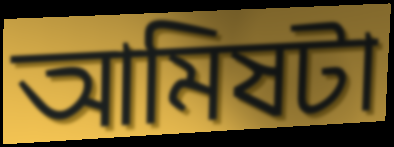
আমিষটা